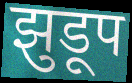
झुडूप